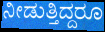
ನೀಡುತ್ತಿದ್ದರೂ